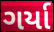
ગર્યા